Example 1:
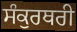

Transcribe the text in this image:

ਸੰਕੁਰਥਰੀ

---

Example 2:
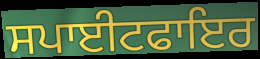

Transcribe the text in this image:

ਸਪਾਈਟਫਾਇਰ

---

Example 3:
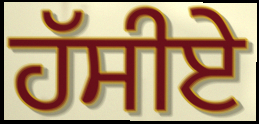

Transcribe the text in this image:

ਹੱਸੀਏ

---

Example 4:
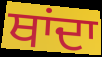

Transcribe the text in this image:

ਥਾਂਦਾ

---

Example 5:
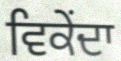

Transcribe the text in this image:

ਵਿਕੇਂਦਾ